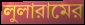
লুলারামের